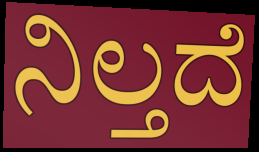
ನಿಲ್ತದೆ